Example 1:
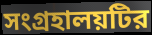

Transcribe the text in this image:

সংগ্রহালয়টির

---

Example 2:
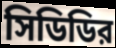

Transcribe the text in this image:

সিডিডির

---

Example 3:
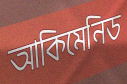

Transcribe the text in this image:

আকিমেনিড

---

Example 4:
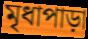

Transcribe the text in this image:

মৃধাপাড়া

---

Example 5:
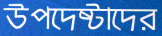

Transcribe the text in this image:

উপদেষ্টাদের